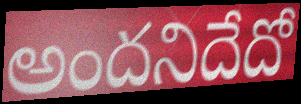
అందనిదేదో